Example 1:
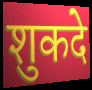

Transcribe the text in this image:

शुकदे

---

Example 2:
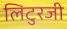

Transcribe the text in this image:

लिटुरजी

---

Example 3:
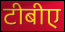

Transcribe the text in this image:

टीबीए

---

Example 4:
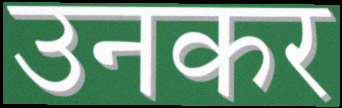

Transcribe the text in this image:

उनकर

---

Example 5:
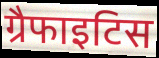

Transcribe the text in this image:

ग्रैफाइटिस